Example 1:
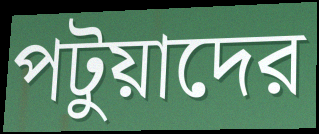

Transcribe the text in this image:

পটুয়াদের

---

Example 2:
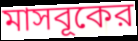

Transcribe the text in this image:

মাসবূকের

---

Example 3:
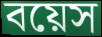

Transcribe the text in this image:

বয়েস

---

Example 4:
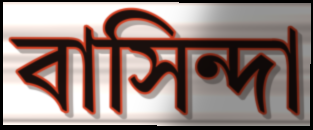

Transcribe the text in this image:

বাসিন্দা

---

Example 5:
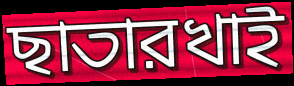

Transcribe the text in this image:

ছাতারখাই